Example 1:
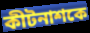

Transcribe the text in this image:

কীটনাশকে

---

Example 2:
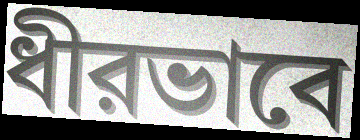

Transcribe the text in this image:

ধীরভাবে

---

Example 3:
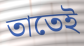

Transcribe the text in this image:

তাতেই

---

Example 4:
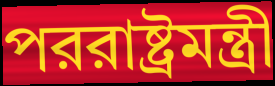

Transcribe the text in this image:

পররাষ্ট্রমন্ত্রী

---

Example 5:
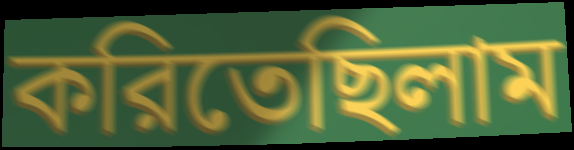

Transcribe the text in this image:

করিতেছিলাম